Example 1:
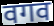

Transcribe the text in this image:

वगव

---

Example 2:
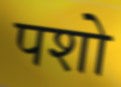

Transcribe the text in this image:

पशो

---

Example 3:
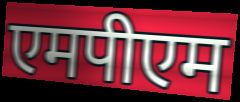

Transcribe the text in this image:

एमपीएम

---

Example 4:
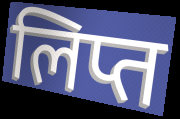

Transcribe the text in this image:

लिप्त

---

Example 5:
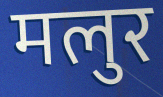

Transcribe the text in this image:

मलुर